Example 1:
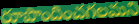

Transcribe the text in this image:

రూపొందించగలమని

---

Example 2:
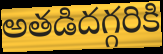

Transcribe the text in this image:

అతడిదగ్గరికి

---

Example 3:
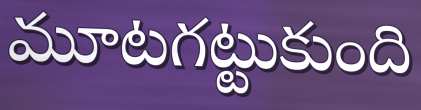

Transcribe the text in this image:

మూటగట్టుకుంది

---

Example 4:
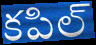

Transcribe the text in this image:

కపిల్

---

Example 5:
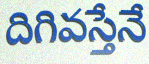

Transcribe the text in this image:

దిగివస్తేనే